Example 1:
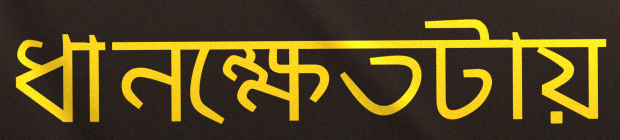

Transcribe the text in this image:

ধানক্ষেতটায়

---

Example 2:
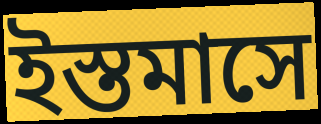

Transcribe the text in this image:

ইস্তমাসে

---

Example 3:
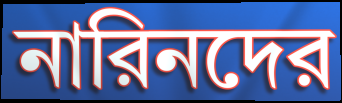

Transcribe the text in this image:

নারিনদের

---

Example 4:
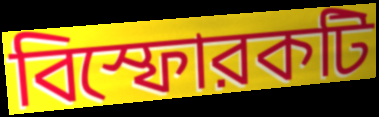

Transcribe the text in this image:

বিস্ফোরকটি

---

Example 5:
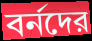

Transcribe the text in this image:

বর্নদের